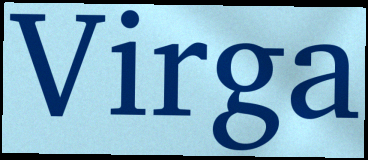
Virga